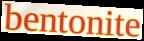
bentonite